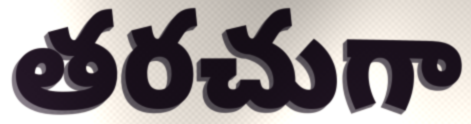
తరచుగా